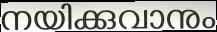
നയിക്കുവാനും